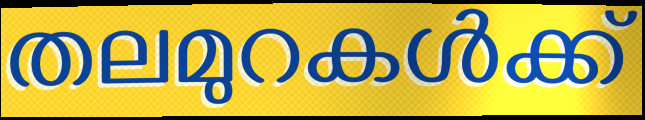
തലമുറകൾക്ക്